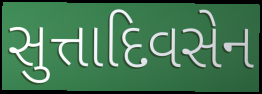
સુત્તાદિવસેન